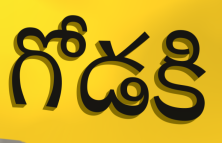
గోడకి